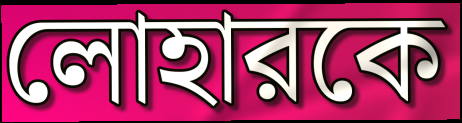
লোহারকে